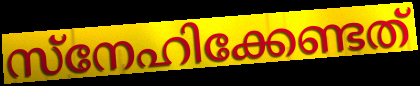
സ്നേഹിക്കേണ്ടത്